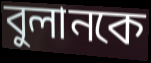
বুলানকে